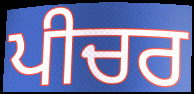
ਪੀਚਰ